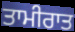
ਤਾਮੀਰਾਤ